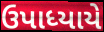
ઉપાધ્યાયે